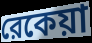
রেকেয়া